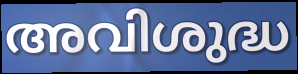
അവിശുദ്ധ